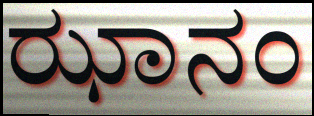
ಝಾನಂ